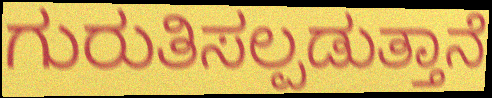
ಗುರುತಿಸಲ್ಪಡುತ್ತಾನೆ